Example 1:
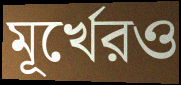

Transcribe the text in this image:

মূর্খেরও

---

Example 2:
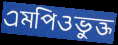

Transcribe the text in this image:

এমপিওভুক্ত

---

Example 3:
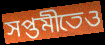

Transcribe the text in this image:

সপ্তমীতেও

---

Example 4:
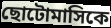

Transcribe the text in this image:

ছোটোমাসিকে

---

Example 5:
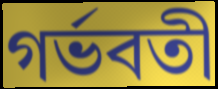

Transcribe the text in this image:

গর্ভবতী